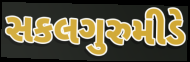
સકલગુરુમીડે